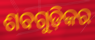
ଶବଗୁଡ଼ିକର